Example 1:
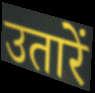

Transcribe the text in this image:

उतारें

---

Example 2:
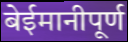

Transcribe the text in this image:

बेईमानीपूर्ण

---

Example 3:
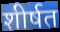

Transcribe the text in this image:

शीर्षत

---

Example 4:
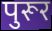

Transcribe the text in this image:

पुरूर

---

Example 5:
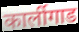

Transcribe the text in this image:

कार्लीगाड